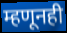
म्हणूनही